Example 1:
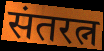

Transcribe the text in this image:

संतरत्न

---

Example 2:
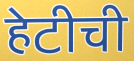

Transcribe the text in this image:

हेटीची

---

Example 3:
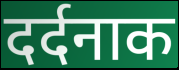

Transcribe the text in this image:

दर्दनाक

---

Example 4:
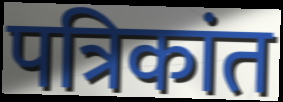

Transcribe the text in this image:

पत्रिकांत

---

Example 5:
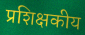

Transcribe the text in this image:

प्रशिक्षकीय